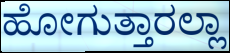
ಹೋಗುತ್ತಾರಲ್ಲಾ